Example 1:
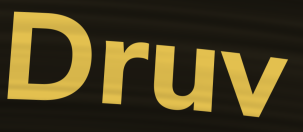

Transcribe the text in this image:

Druv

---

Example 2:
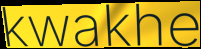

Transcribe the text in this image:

kwakhe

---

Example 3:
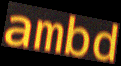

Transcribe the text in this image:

ambd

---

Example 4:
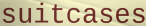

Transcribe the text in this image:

suitcases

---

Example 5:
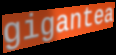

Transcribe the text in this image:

gigantea